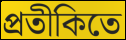
প্রতীকিতে